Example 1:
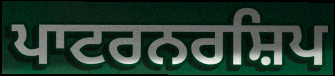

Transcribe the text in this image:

ਪਾਟਰਨਰਸ਼ਿਪ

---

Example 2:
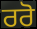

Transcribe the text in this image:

ਰਰੋ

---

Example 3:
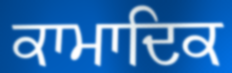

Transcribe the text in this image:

ਕਾਮਾਦਿਕ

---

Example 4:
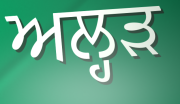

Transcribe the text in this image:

ਅਲ੍ਹੜ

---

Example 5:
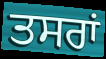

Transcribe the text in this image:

ਤਸਰਾਂ